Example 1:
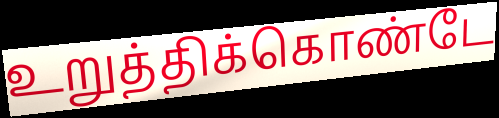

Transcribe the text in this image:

உறுத்திக்கொண்டே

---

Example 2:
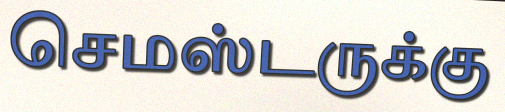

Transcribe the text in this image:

செமஸ்டருக்கு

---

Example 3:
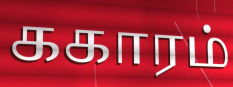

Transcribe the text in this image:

ககாரம்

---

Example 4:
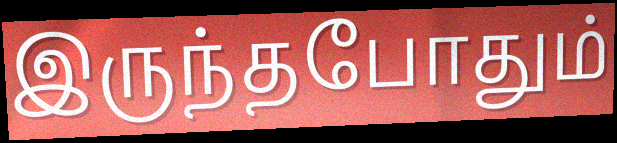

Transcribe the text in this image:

இருந்தபோதும்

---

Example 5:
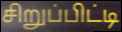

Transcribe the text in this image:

சிறுப்பிட்டி